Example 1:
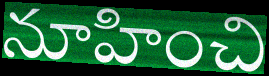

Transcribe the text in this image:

నూహించి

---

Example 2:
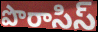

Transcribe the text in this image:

పొరాసిస్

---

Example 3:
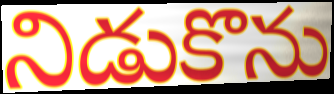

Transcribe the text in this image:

నిడుకొను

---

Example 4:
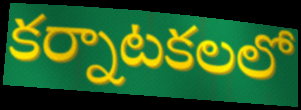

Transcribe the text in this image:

కర్నాటకలలో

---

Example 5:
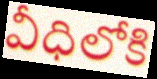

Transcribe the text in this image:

వీధిలోకి